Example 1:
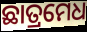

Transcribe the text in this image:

ଛାତ୍ରମେଧ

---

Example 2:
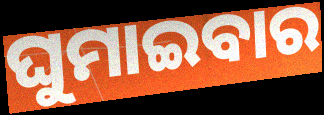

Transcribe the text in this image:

ଘୁମାଇବାର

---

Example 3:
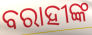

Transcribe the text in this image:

ବରାହୀଙ୍କ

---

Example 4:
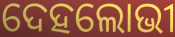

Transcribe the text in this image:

ଦେହଲୋଭୀ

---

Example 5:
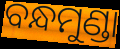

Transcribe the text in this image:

ବନ୍ଧମୁଣ୍ଡା